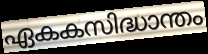
ഏകകസിദ്ധാന്തം